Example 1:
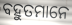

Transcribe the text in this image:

ବହୁତମାନେ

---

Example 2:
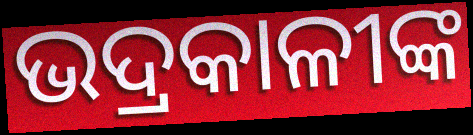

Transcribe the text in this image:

ଭଦ୍ରକାଳୀଙ୍କ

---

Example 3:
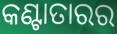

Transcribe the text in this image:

କଣ୍ଟାତାରର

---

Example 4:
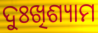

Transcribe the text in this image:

ଦୁଃଖିଶ୍ୟାମ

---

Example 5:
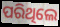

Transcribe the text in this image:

ପରିଥିଲେ